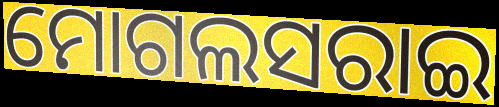
ମୋଗଲସରାଇ